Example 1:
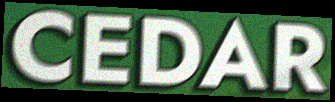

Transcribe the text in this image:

CEDAR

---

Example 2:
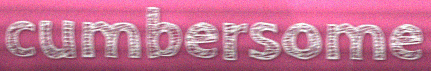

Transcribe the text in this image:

cumbersome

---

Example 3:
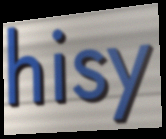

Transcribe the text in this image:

hisy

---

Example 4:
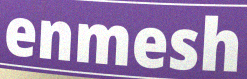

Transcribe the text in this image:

enmesh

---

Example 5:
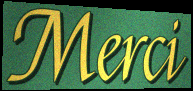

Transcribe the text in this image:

Merci